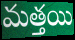
మత్తయి